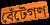
বেঁটেগণ